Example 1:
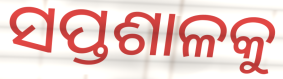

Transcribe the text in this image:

ସପ୍ତଶାଳକୁ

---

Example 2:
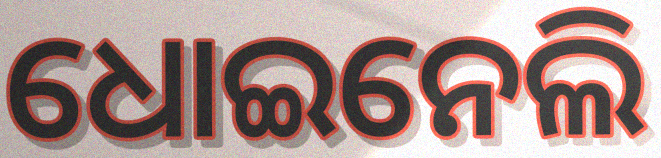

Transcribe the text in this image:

ଧୋଇନେଲି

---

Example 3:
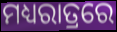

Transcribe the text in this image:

ମଧ୍ୟରାତ୍ରରେ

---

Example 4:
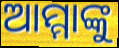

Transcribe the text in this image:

ଆମ୍ମାଙ୍କୁ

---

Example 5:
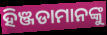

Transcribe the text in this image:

ହିଞ୍ଜଡାମାନଙ୍କୁ